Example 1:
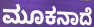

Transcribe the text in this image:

ಮೂಕನಾದೆ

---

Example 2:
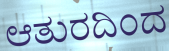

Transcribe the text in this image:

ಆತುರದಿಂದ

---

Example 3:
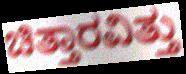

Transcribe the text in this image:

ಚಿತ್ತಾರವಿತ್ತು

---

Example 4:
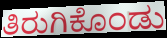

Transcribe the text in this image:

ತಿರುಗಿಕೊಂಡು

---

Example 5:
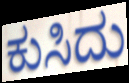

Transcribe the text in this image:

ಕುಸಿದು